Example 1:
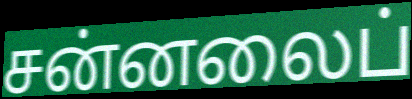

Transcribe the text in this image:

சன்னலைப்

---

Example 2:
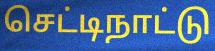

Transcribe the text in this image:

செட்டிநாட்டு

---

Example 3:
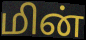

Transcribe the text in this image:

மின்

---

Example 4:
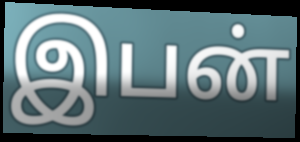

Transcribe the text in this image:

இபன்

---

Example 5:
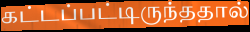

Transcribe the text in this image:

கட்டப்பட்டிருந்ததால்